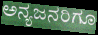
ಅನ್ಯಜನರಿಗೂ